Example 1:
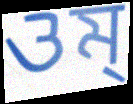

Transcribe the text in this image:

ওম্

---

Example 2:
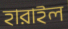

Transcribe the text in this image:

হারাইল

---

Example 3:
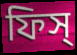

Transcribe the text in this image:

ফিস্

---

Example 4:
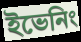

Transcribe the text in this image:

ইভেনিং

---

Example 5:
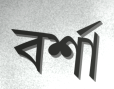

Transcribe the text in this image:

বর্শা